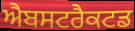
ਐਬਸਟਰੈਕਟਡ